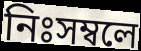
নিঃসম্বলে